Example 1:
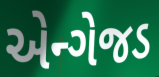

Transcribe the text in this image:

એન્ગેજડ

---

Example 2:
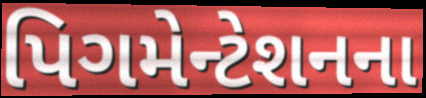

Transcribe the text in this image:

પિગમેન્ટેશનના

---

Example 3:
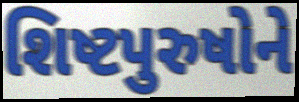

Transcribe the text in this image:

શિષ્ટપુરુષોને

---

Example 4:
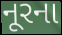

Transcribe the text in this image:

નૂરના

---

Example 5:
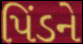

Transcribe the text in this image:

પિંડને